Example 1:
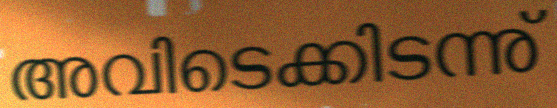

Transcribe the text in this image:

അവിടെക്കിടന്നു്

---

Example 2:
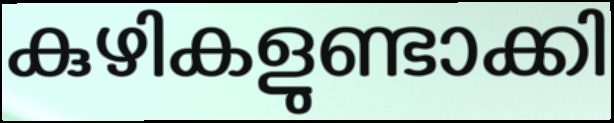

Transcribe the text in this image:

കുഴികളുണ്ടാക്കി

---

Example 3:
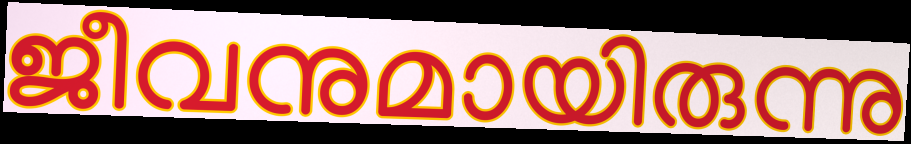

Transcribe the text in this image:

ജീവനുമായിരുന്നു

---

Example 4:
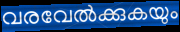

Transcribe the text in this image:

വരവേൽക്കുകയും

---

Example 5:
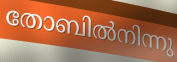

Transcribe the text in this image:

തോബിൽനിന്നു